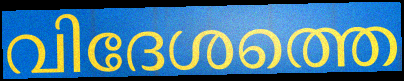
വിദേശത്തെ